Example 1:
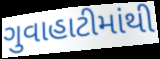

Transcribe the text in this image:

ગુવાહાટીમાંથી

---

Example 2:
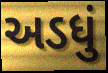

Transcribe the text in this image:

અડધું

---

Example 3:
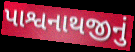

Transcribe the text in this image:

પાશ્વનાથજીનું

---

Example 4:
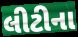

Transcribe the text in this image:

લીટીના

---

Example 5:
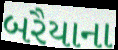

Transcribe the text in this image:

બરૈયાના